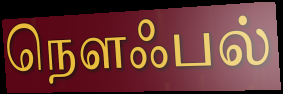
நௌஃபல்